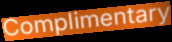
Complimentary